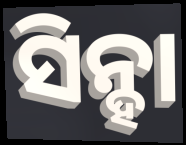
ସିନ୍ହା